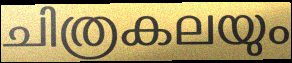
ചിത്രകലയും